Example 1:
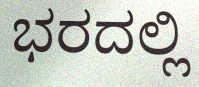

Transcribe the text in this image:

ಭರದಲ್ಲಿ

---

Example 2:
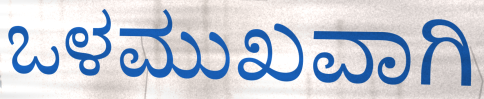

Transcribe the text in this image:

ಒಳಮುಖವಾಗಿ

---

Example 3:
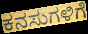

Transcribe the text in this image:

ಕನಸುಗಳಿಗೆ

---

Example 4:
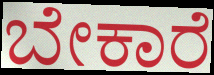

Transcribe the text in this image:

ಬೇಕಾರೆ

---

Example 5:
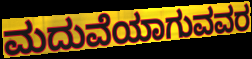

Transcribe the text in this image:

ಮದುವೆಯಾಗುವವರ